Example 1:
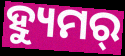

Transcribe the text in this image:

ହ୍ୟୁମର୍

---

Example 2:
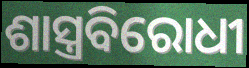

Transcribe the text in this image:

ଶାସ୍ତ୍ରବିରୋଧୀ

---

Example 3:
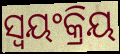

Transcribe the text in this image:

ସ୍ୱୟଂକ୍ରିୟ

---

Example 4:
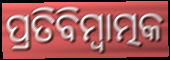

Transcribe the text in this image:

ପ୍ରତିବିମ୍ବାତ୍ମକ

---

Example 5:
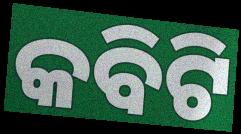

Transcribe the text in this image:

କବିଟି